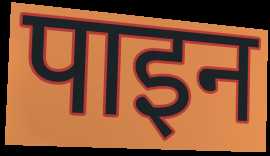
पाइन